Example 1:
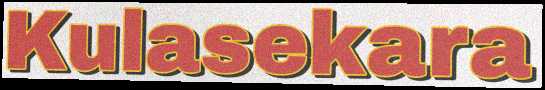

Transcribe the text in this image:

Kulasekara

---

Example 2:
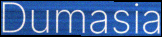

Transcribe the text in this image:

Dumasia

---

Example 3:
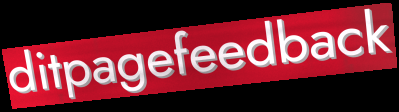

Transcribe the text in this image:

ditpagefeedback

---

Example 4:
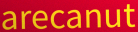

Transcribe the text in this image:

arecanut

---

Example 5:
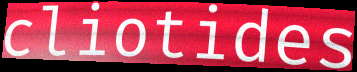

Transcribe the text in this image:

cliotides